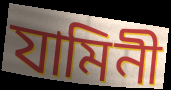
যামিনী